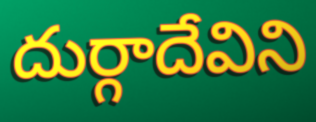
దుర్గాదేవిని